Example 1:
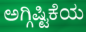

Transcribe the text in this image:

ಅಗ್ಗಿಷ್ಟಿಕೆಯ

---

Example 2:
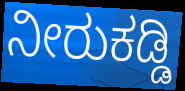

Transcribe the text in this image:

ನೀರುಕಡ್ಡಿ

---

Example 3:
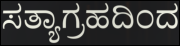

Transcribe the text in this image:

ಸತ್ಯಾಗ್ರಹದಿಂದ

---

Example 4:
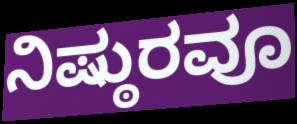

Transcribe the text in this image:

ನಿಷ್ಠುರವೂ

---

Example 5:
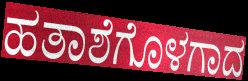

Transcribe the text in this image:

ಹತಾಶೆಗೊಳಗಾದ